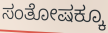
ಸಂತೋಷಕ್ಕೂ